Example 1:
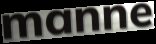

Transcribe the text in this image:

manne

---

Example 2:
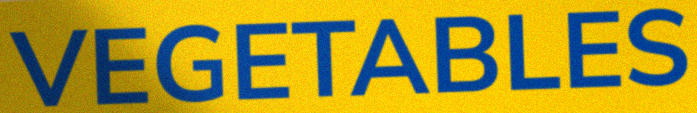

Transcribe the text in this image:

VEGETABLES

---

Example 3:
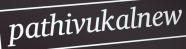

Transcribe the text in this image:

pathivukalnew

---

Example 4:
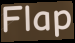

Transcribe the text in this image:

Flap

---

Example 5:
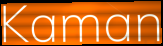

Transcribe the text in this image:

Kaman